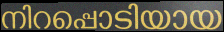
നിറപ്പൊടിയായ